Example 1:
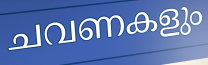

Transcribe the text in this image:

ചവണകളും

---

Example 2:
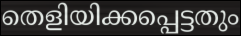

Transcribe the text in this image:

തെളിയിക്കപ്പെട്ടതും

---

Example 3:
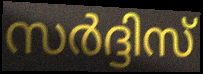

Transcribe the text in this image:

സർദ്ദിസ്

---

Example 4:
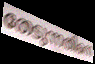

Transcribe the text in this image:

തേടുന്നതിനെ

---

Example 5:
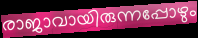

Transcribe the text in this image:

രാജാവായിരുന്നപ്പോഴും